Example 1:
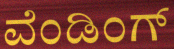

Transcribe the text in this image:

ವೆಂಡಿಂಗ್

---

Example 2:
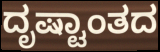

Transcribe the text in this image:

ದೃಷ್ಟಾಂತದ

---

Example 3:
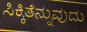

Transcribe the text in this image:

ಸಿಕ್ಕಿತೆನ್ನುವುದು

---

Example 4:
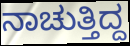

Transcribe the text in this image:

ನಾಚುತ್ತಿದ್ದ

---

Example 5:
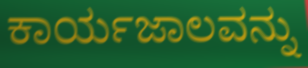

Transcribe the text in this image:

ಕಾರ್ಯಜಾಲವನ್ನು